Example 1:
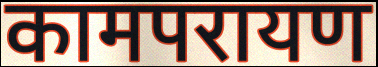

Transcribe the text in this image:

कामपरायण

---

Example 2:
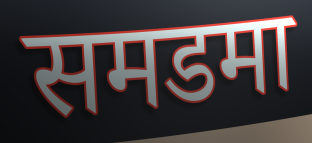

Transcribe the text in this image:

समडमा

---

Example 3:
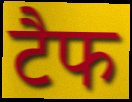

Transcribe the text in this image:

टैफ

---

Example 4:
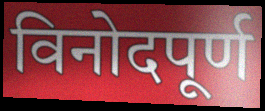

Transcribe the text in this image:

विनोदपूर्ण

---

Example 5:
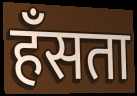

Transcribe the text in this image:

हॅंसता